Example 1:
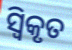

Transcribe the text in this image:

ସ୍ୱିକୃତ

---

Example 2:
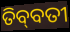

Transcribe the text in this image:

ତିବ୍‌ବତୀ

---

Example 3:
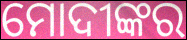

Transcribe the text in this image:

ମୋଦୀଙ୍କର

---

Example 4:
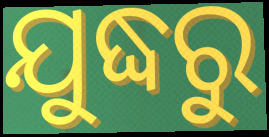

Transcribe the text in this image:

ଯୁଦ୍ଧରୁ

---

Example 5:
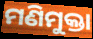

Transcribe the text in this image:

ମଣିମୁକ୍ତା